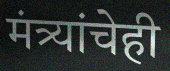
मंत्र्यांचेही